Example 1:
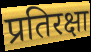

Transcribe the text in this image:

प्रतिरक्षा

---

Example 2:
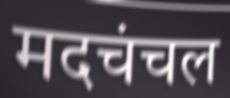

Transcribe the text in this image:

मदचंचल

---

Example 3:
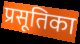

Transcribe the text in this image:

प्रसूतिका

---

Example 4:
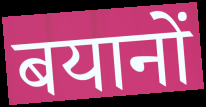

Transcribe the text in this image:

बयानों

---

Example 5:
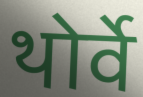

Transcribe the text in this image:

थोर्वे